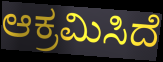
ಆಕ್ರಮಿಸಿದೆ